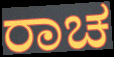
ರಾಚ